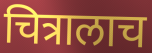
चित्रालाच